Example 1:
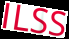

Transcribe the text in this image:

ILSS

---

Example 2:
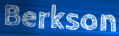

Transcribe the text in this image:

Berkson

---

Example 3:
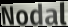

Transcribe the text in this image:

Nodal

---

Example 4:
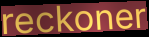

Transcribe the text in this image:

reckoner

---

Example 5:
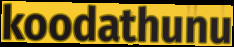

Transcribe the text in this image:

koodathunu